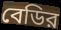
বেডির